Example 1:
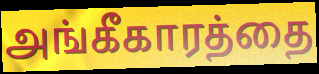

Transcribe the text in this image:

அங்கீகாரத்தை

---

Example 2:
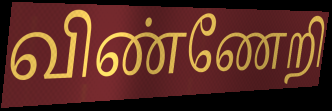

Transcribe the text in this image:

விண்ணேறி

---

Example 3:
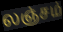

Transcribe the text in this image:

லஞ்சம்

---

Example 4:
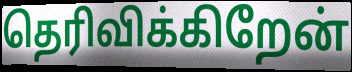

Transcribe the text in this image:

தெரிவிக்கிறேன்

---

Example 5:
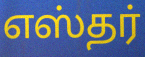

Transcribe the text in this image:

எஸ்தர்